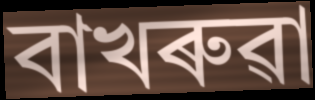
বাখৰুৱা